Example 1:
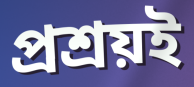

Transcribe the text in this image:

প্রশ্রয়ই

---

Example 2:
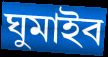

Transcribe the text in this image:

ঘুমাইব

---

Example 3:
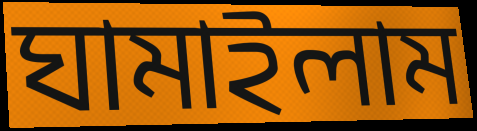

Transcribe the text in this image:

ঘামাইলাম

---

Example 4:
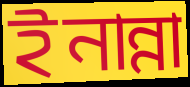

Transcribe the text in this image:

ইনান্না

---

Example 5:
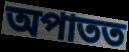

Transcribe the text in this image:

অপাতত